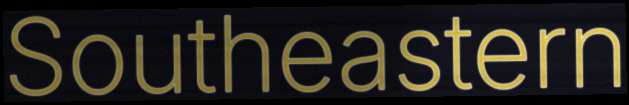
Southeastern